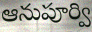
ఆనుపూర్వి